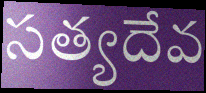
సత్యదేవ